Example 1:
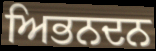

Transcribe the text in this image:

ਅਿਭਨਦਨ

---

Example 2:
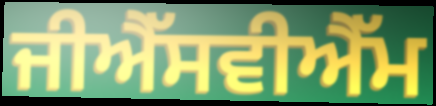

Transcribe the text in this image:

ਜੀਐੱਸਵੀਐੱਮ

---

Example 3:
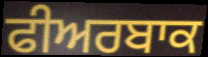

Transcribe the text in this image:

ਫੀਅਰਬਾਕ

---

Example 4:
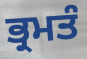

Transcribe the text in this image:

ਭ੍ਰਮਤੰ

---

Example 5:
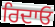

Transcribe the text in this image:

ਰਿਦਾਓ